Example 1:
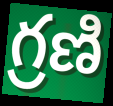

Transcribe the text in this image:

గ్రణి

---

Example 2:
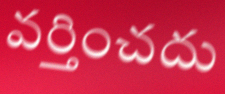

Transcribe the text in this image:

వర్తించదు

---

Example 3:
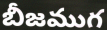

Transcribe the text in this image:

బీజముగ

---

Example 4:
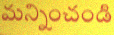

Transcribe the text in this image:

మన్నించండి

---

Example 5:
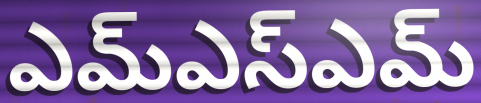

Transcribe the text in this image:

ఎమ్ఎస్ఎమ్